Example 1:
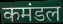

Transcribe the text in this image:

कमंडल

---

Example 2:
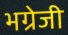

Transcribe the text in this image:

भग्रेजी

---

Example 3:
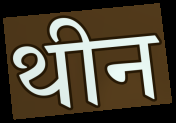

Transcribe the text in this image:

थीन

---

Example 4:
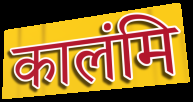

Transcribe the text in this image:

कालंमि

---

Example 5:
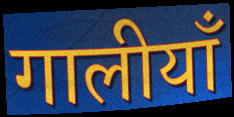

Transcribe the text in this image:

गालीयाँ